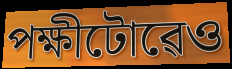
পক্ষীটোৱেও